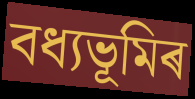
বধ্যভূমিৰ